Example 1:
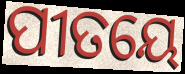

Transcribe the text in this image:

ପୀତୟେ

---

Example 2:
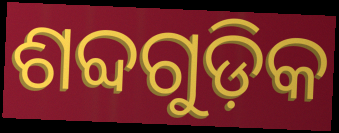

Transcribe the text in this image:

ଶବ୍ଦଗୁଡ଼ିକ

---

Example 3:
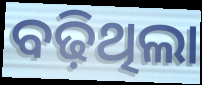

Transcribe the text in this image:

ବଢ଼ିଥିଲା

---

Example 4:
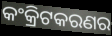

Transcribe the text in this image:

କଂକ୍ରିଟକରଣର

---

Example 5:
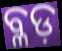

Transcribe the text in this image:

ବ୍ଳଡ଼